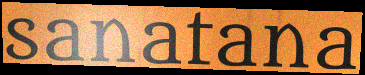
sanatana